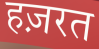
हज़रत